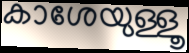
കാശേയുള്ളൂ